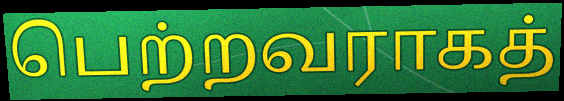
பெற்றவராகத்